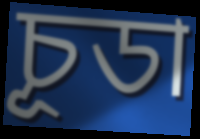
চূডা